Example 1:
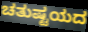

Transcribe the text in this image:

ಚತುಷ್ಟಯದ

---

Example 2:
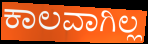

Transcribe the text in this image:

ಕಾಲವಾಗಿಲ್ಲ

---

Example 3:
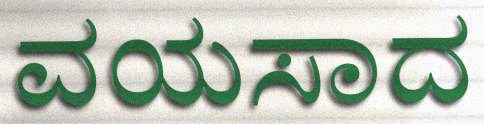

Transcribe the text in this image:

ವಯಸಾದ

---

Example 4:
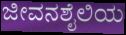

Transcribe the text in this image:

ಜೀವನಶೈಲಿಯ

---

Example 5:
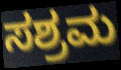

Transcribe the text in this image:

ಸಶ್ರಮ